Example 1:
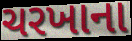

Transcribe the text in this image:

ચરખાના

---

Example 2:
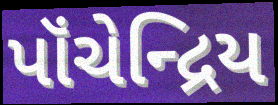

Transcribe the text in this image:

પૉંચેન્દ્રિય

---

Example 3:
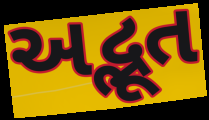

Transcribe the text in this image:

અદ્ભૂત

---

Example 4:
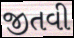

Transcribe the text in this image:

જીતવી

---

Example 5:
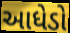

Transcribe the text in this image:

આધેડો